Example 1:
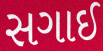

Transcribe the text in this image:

સગાઈ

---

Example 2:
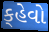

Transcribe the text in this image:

ક્‌હેવો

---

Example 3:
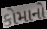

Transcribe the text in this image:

કોમાનો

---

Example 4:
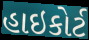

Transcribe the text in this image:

હાઇકોર્ટ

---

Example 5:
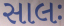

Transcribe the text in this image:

સાલઃ